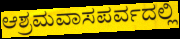
ಆಶ್ರಮವಾಸಪರ್ವದಲ್ಲಿ